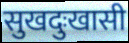
सुखदुःखासी